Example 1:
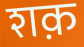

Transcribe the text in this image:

शक़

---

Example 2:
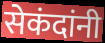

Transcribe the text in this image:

सेकंदांनी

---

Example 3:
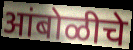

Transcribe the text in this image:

आंबोळीचे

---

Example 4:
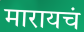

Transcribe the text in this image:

मारायचं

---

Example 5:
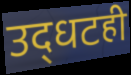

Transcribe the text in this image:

उद्धटही